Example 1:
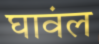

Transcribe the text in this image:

घावंल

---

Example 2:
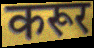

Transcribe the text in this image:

करूर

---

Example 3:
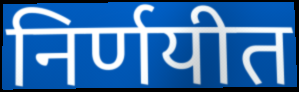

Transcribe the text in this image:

निर्णयीत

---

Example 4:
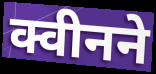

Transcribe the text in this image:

क्वीनने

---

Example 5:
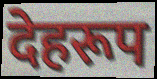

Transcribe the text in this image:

देहरूप